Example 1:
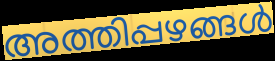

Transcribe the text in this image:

അത്തിപ്പഴങ്ങൾ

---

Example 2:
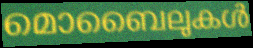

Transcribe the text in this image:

മൊബൈലുകൾ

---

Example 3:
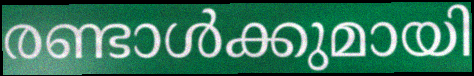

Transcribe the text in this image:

രണ്ടാൾക്കുമായി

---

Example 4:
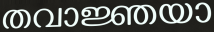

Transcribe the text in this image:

തവാജ്ഞയാ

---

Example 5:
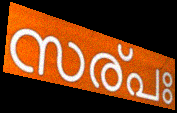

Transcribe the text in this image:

സര്പഃ